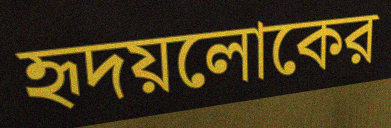
হৃদয়লোকের